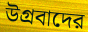
উগ্রবাদের